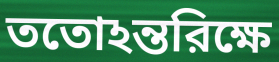
ততোঽন্তরিক্ষে